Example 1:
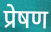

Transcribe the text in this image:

प्रेषण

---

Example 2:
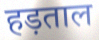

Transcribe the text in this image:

हड़ताल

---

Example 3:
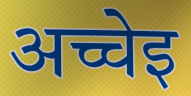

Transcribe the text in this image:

अच्चेइ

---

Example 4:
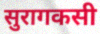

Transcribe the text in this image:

सुरागकसी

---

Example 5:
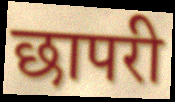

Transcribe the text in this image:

छापरी